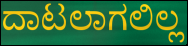
ದಾಟಲಾಗಲಿಲ್ಲ